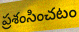
ప్రశంసించటం